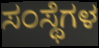
ಸಂಸ್ಥೆಗಳ